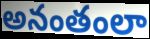
అనంతంలా